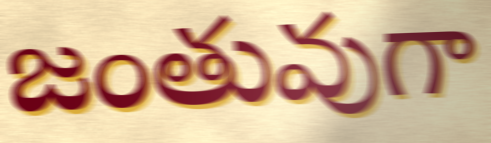
జంతువుగా